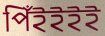
পিঁইইইই